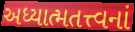
અધ્યાત્મતત્ત્વનાં